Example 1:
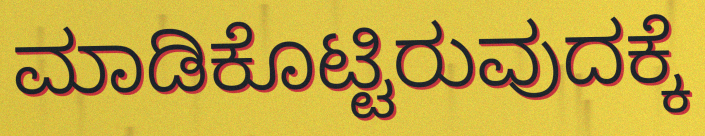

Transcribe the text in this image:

ಮಾಡಿಕೊಟ್ಟಿರುವುದಕ್ಕೆ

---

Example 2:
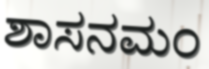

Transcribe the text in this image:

ಶಾಸನಮಂ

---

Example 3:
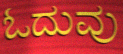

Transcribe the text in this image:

ಓದುವು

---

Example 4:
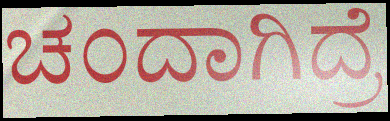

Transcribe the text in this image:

ಚಂದಾಗಿದ್ರೆ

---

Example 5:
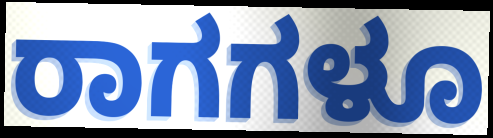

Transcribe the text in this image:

ರಾಗಗಳೂ